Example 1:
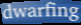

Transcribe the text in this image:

dwarfing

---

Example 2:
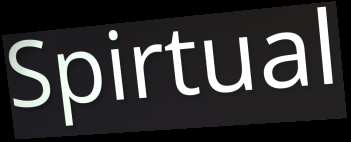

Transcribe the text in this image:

Spirtual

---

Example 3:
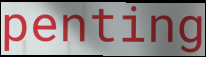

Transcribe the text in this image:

penting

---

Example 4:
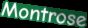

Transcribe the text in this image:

Montrose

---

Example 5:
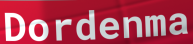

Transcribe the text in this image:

Dordenma